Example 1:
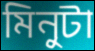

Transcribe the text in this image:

মিনুটা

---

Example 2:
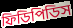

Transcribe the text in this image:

ফিডিপিডিস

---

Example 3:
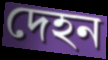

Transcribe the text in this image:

দেহন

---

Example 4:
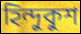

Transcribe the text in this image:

হিন্দুকুশ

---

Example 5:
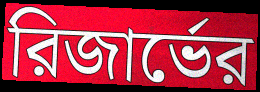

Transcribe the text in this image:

রিজার্ভের